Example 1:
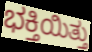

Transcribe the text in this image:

ಭಕ್ತಿಯಿತ್ತು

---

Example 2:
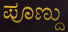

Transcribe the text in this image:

ಪೂಣ್ದು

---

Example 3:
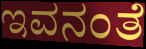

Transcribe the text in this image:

ಇವನಂತೆ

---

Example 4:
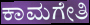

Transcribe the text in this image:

ಕಾಮಗೇತಿ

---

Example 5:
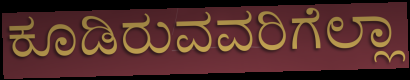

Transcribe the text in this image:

ಕೂಡಿರುವವರಿಗೆಲ್ಲಾ